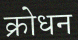
क्रोधन